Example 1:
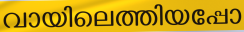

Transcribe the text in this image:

വായിലെത്തിയപ്പോ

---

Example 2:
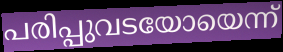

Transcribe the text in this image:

പരിപ്പുവടയോയെന്ന്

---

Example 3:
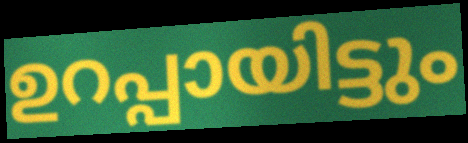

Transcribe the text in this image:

ഉറപ്പായിട്ടും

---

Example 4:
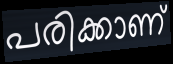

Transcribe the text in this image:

പരിക്കാണ്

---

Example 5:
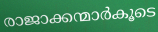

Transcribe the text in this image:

രാജാക്കന്മാർകൂടെ